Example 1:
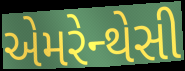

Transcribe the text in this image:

એમરેન્થેસી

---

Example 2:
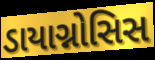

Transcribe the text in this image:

ડાયાગ્નોસિસ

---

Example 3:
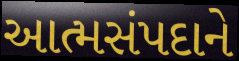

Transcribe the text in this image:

આત્મસંપદાને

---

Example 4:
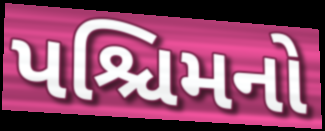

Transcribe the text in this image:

પશ્ચિમનો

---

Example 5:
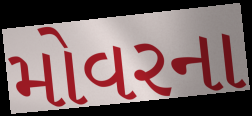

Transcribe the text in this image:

મોવરના